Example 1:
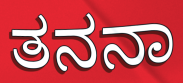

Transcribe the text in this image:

ತನನಾ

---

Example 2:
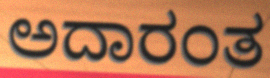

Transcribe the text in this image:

ಅದಾರಂತ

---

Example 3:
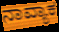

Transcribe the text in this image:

ನಾವ್ಯಾಕ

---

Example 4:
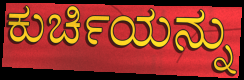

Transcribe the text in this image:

ಕುರ್ಚಿಯನ್ನು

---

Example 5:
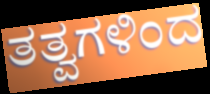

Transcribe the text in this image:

ತತ್ವಗಳಿಂದ